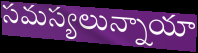
సమస్యలున్నాయా